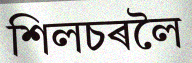
শিলচৰলৈ